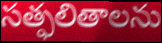
సత్ఫలితాలను